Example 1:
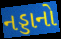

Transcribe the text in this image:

નડ્ડાનો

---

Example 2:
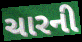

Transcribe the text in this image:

ચારની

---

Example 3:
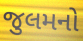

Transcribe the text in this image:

જુલમનો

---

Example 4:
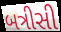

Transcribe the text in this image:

બત્રીસી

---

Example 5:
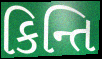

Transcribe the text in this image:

કિન્તિ